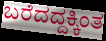
ಬರೆದದ್ದಕ್ಕಿಂತ